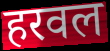
हरवल